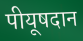
पीयूषदान